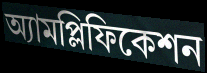
অ্যামপ্লিফিকেশন